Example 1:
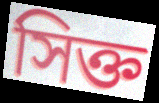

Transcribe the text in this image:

সিক্ত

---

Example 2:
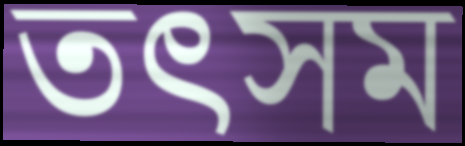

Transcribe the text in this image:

তৎসম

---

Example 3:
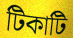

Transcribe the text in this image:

টিকাটি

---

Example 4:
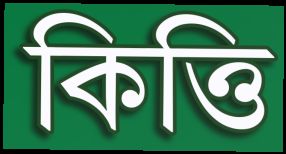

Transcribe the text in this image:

কিত্তি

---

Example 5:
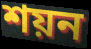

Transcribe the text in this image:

শয়ন